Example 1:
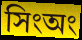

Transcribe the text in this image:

সিংঅং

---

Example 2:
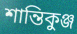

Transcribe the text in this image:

শান্তিকুঞ্জ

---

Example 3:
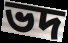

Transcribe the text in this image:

ভদ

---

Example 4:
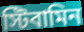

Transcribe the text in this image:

স্টিবামিন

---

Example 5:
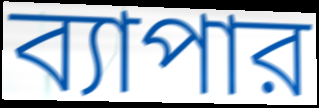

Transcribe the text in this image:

ব্যাপার